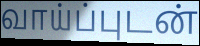
வாய்ப்புடன்